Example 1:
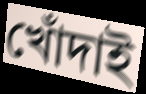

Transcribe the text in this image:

খোঁদাই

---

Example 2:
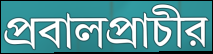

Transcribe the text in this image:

প্রবালপ্রাচীর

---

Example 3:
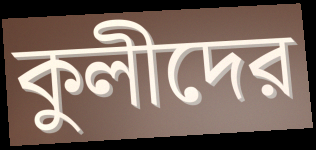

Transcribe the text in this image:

কুলীদের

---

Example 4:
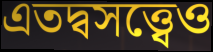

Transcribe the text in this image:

এতদ্বসত্ত্বেও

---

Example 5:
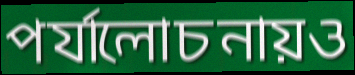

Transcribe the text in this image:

পর্যালোচনায়ও